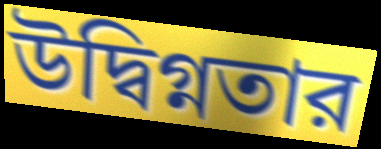
উদ্বিগ্নতার